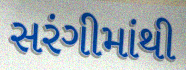
સરંગીમાંથી